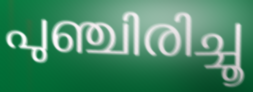
പുഞ്ചിരിച്ചൂ